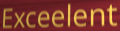
Exceelent